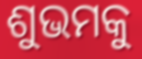
ଶୁଭମକୁ